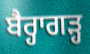
ਬੈਰ੍ਹਾਗੜ੍ਹ